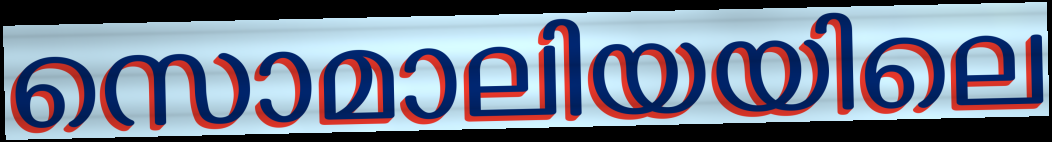
സൊമാലിയയിലെ